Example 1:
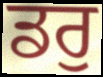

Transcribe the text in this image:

ਡਰੁ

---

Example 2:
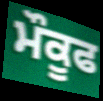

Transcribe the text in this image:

ਮੌਕੂਫ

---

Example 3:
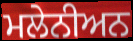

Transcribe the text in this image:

ਮਲੇਨੀਅਨ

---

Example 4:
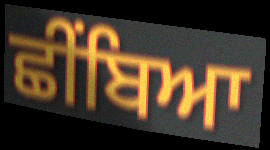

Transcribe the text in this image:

ਛੀਂਬਿਆ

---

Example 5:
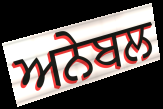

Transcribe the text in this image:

ਅਨੇਬਲ